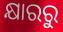
କ୍ଷାରରୁ